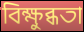
বিক্ষুব্ধতা